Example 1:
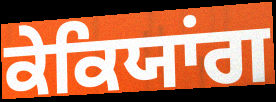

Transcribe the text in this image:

ਕੇਕਿਯਾਂਗ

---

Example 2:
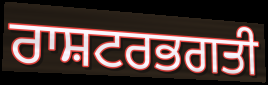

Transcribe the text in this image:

ਰਾਸ਼ਟਰਭਗਤੀ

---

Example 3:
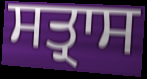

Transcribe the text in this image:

ਸਤ੍ਰਾਸ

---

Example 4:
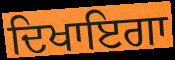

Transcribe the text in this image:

ਦਿਖਾਇਗਾ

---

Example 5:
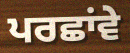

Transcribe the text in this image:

ਪਰਛਾਂਵੇ